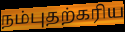
நம்புதற்கரிய